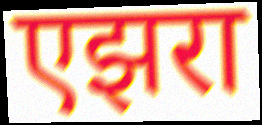
एझरा